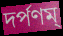
দর্পণম্